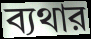
ব্যথার